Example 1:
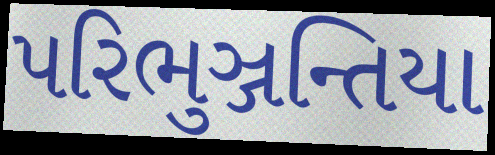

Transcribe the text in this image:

પરિભુઞ્જન્તિયા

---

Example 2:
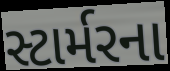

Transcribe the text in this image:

સ્ટાર્મરના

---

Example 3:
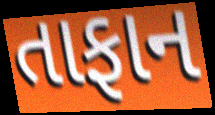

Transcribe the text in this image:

તાફાન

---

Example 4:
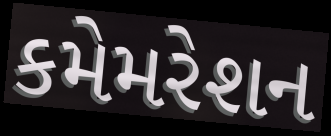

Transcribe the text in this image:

કમેમરેશન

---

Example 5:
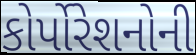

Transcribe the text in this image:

કોર્પોરેશનોની